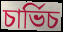
চাৰ্ভিচ